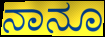
ನಾನೂ